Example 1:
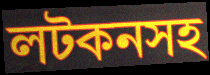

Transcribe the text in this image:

লটকনসহ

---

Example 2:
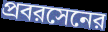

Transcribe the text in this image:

প্রবরসেনের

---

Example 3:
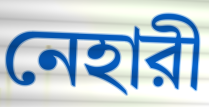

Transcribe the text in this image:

নেহারী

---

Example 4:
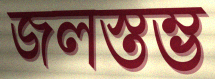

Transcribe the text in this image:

জলস্তম্ভ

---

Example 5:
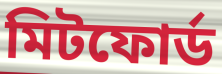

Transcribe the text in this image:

মিটফোর্ড